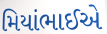
મિયાંભાઈએ